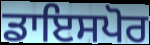
ਡਾਇਸਪੋਰ